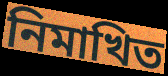
নিমাখিত